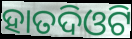
ହାତଦିଓଟି